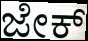
ಜೇಕ್